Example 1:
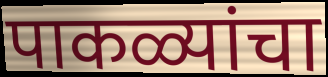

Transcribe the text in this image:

पाकळ्यांचा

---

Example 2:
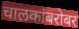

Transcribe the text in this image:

चालकांबरोबर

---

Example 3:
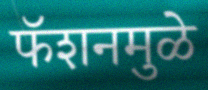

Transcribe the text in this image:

फॅशनमुळे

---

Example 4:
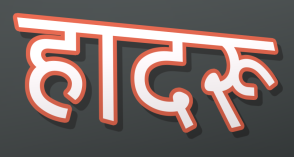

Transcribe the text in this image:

हादरू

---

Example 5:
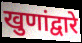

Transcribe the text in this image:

खुणांद्वारे